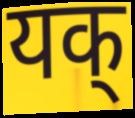
यक्